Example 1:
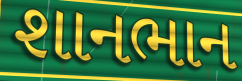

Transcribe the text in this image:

શાનભાન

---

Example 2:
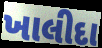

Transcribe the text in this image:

ખાલીદા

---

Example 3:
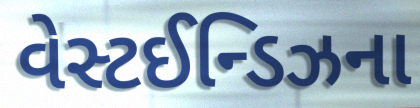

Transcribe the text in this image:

વેસ્ટઈન્ડિઝના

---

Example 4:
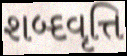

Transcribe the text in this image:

શબ્દવૃત્તિ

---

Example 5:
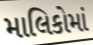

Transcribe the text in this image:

માલિકોમાં